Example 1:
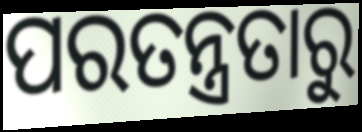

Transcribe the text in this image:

ପରତନ୍ତ୍ରତାରୁ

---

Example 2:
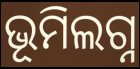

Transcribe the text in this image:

ଭୂମିଲଗ୍ନ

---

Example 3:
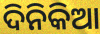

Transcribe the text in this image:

ଦିନିକିଆ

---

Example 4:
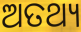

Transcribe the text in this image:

ଅତଥ୍ୟ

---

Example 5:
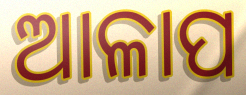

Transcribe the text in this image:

ଆଳାପ